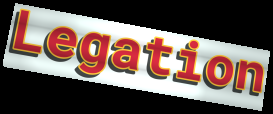
Legation